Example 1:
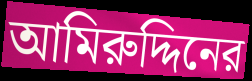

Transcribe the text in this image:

আমিরুদ্দিনের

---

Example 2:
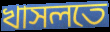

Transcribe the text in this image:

খাসলতে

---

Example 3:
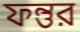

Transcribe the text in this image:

ফন্তুর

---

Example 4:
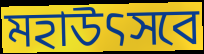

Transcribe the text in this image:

মহাউৎসবে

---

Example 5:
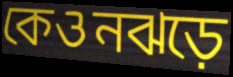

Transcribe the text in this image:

কেওনঝড়ে